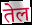
तेल